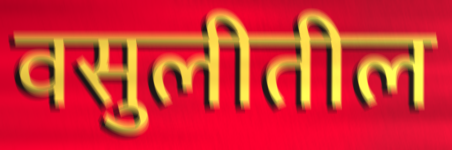
वसुलीतील